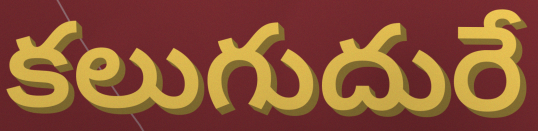
కలుగుదురే